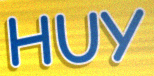
HUY